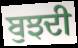
ਬੁਝਦੀ